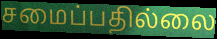
சமைப்பதில்லை